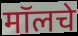
मॉलचे